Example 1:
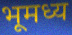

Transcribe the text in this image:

भूमध्य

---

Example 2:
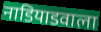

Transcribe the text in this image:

नाडियाडवाला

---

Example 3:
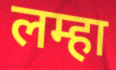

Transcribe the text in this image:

लम्हा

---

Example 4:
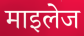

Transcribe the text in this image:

माइलेज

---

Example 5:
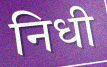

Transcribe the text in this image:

निधी